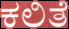
ಕಲಿತೆ